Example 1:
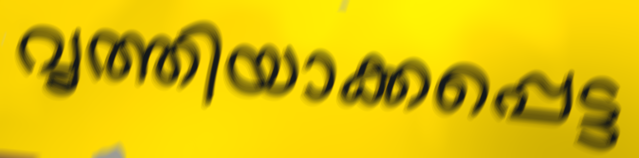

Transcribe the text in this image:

വൃത്തിയാക്കപ്പെട്ട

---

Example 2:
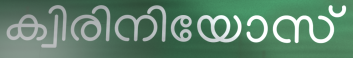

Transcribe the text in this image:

ക്വിരിനിയോസ്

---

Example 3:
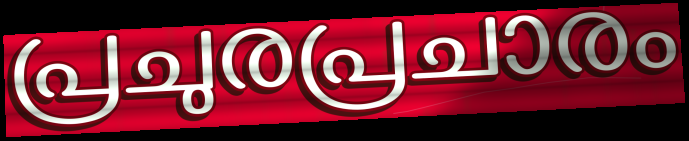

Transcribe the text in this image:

പ്രചുരപ്രചാരം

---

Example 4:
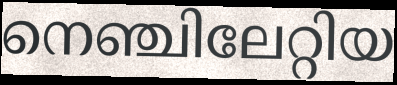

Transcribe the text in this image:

നെഞ്ചിലേറ്റിയ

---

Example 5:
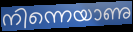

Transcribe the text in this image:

നിന്നെയാണു